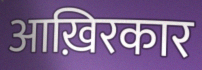
आख़िरकार